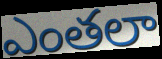
ఎంతలా